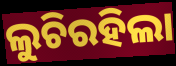
ଲୁଚିରହିଲା